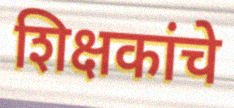
शिक्षकांचे